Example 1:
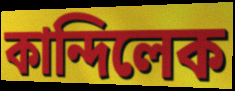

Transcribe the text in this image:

কান্দিলেক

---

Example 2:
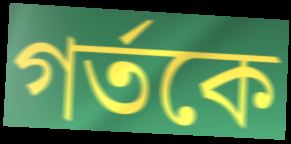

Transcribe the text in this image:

গর্তকে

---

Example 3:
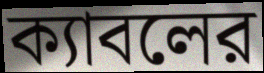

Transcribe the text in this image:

ক্যাবলের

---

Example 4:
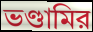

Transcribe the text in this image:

ভণ্ডামির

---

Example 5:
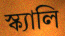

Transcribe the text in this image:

স্ক্যালি